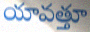
యావత్తూ